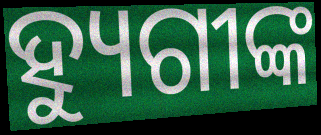
ହ୍ୟୁଗୀଙ୍କ